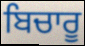
ਬਿਚਾਰੂ